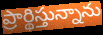
ప్రార్థిస్తున్నాను